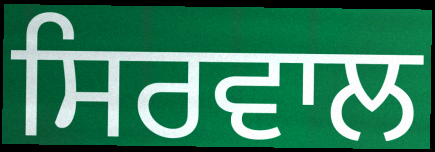
ਸਿਰਵਾਲ